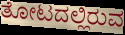
ತೋಟದಲ್ಲಿರುವ